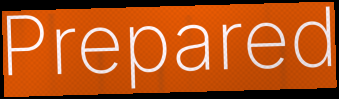
Prepared